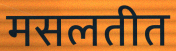
मसलतीत